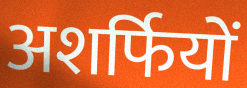
अशर्फियों